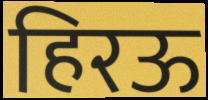
हिरऊ